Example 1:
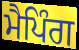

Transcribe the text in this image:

ਮੈਪਿੰਗ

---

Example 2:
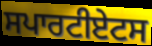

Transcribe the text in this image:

ਸਪਾਰਟੀਏਟਸ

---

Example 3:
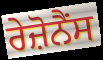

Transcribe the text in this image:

ਰੇਜ਼ੋਨੈਂਸ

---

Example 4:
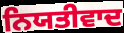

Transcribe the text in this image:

ਨਿਯਤੀਵਾਦ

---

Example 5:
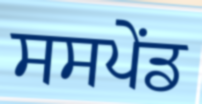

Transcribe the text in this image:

ਸਸਪੇੰਡ